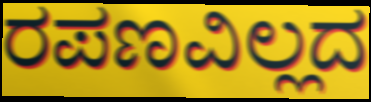
ರಪಣವಿಲ್ಲದ